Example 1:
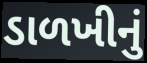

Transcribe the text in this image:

ડાળખીનું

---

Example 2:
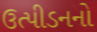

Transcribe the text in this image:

ઉત્પીડનનો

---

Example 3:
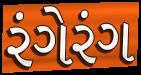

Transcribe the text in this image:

રંગેરંગ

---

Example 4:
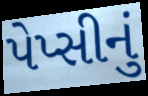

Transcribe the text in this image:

પેપ્સીનું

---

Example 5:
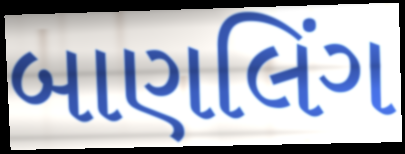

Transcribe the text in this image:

બાણલિંગ